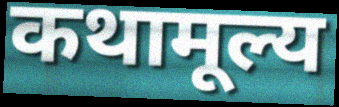
कथामूल्य